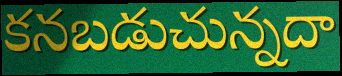
కనబడుచున్నదా